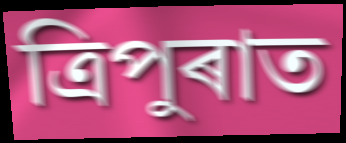
ত্ৰিপুৰাত